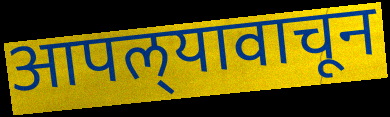
आपल्यावाचून